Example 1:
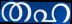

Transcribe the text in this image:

തഹ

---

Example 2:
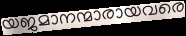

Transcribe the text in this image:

യജമാനന്മാരായവരെ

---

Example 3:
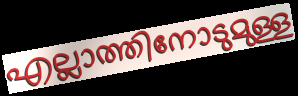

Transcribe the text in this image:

എല്ലാത്തിനോടുമുള്ള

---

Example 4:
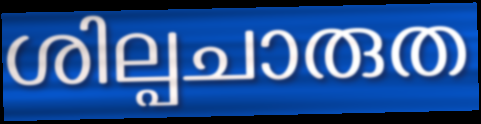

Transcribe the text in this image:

ശില്പചാരുത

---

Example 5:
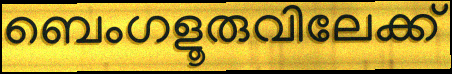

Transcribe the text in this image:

ബെംഗളൂരുവിലേക്ക്